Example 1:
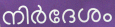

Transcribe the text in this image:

നിർദേശം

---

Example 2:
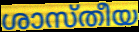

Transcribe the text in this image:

ശാസ്തീയ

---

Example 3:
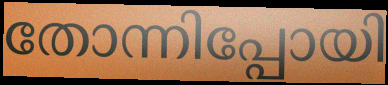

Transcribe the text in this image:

തോന്നിപ്പോയി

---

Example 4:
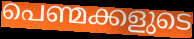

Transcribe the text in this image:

പെണ്മക്കളുടെ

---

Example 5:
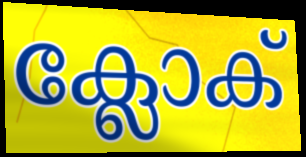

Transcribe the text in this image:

ക്ലോക്